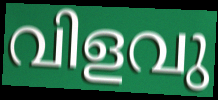
വിളവു